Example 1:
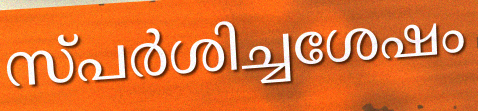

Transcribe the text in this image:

സ്പർശിച്ചശേഷം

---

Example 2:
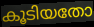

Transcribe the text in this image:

കൂടിയതോ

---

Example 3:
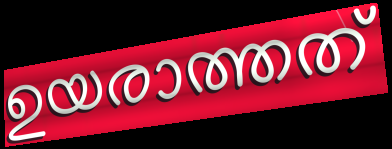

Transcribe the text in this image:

ഉയരാത്തത്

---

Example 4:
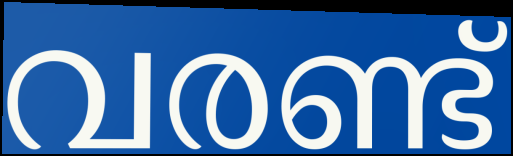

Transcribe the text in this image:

വരണ്ട്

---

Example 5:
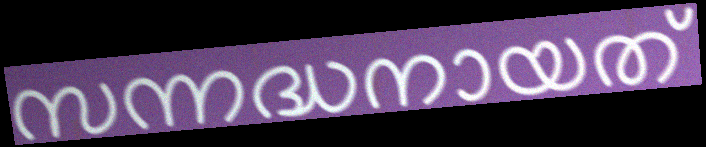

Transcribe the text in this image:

സന്നദ്ധനായത്